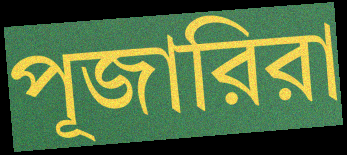
পূজারিরা